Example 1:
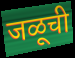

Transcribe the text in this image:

जळूची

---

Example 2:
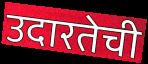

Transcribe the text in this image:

उदारतेची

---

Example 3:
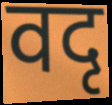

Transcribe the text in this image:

वदृ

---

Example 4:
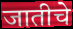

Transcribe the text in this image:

जातीचे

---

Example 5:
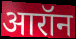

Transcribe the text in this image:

आरॉन